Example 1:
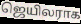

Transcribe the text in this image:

ஜெயிலராக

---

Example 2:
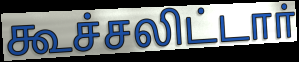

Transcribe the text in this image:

கூச்சலிட்டார்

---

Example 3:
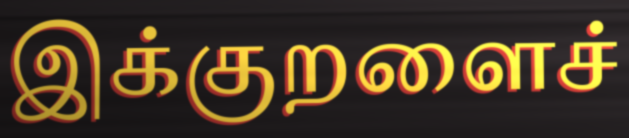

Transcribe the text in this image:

இக்குறளைச்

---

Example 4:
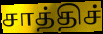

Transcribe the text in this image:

சாத்திச்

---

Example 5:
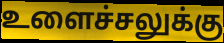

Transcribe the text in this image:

உளைச்சலுக்கு